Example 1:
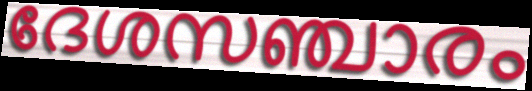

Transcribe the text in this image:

ദേശസഞ്ചാരം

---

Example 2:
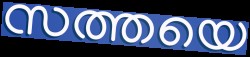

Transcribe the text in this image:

സത്തയെ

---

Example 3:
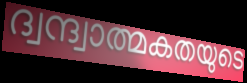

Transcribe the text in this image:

ദ്വന്ദ്വാത്മകതയുടെ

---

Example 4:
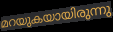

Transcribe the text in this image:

മറയുകയായിരുന്നു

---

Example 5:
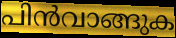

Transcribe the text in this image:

പിൻവാങ്ങുക